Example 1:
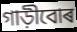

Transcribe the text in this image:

গাড়ীবোৰ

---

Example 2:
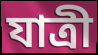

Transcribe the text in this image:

যাত্ৰী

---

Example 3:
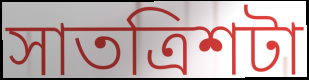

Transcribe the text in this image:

সাতত্ৰিশটা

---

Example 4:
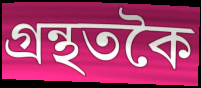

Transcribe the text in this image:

গ্ৰন্থতকৈ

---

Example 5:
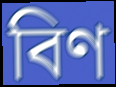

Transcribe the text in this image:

বিণ